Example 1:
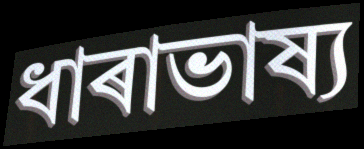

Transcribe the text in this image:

ধাৰাভাষ্য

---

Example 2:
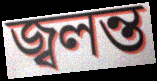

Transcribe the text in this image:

জ্বলন্ত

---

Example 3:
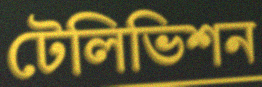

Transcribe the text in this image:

টেলিভিশন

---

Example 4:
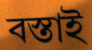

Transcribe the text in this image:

বস্তাই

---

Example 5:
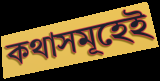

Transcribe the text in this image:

কথাসমূহেই